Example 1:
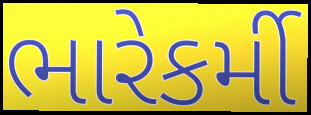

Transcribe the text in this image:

ભારેકર્મી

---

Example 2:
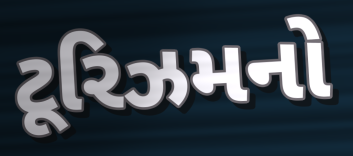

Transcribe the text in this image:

ટૂરિઝમનો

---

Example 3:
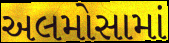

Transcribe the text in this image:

અલમોસામાં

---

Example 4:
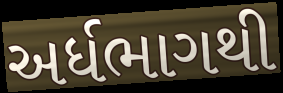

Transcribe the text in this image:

અર્ધભાગથી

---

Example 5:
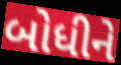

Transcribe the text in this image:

બોધીને